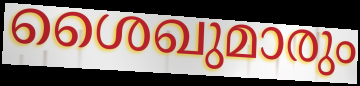
ശൈഖുമാരും